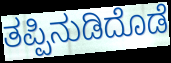
ತಪ್ಪಿನುಡಿದೊಡೆ